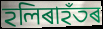
হলিৰাহঁতৰ